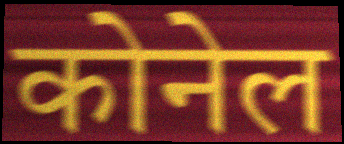
कोनेल